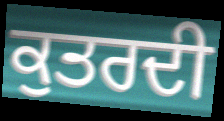
ਕੁਤਰਦੀ